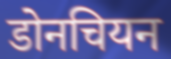
डोनचियन